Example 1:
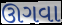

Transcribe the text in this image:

ઊગવા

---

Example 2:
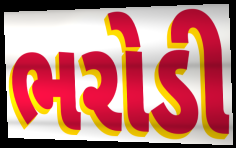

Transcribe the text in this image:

ભરોડી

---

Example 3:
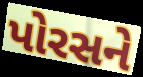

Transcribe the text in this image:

પોરસને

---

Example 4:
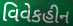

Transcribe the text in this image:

વિવેકહીન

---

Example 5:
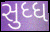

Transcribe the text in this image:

સુધ્ધ